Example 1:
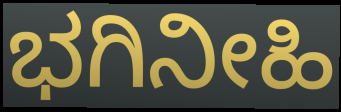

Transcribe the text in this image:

ಭಗಿನೀಹಿ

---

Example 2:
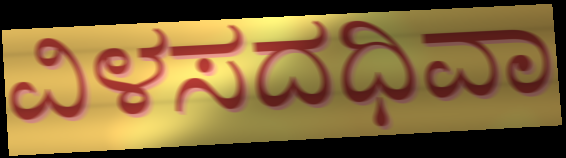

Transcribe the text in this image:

ವಿಳಸದಧಿವಾ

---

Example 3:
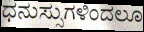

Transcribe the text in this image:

ಧನುಸ್ಸುಗಳಿಂದಲೂ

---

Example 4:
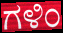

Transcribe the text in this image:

ಗಳಿಂ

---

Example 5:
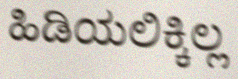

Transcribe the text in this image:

ಹಿಡಿಯಲಿಕ್ಕಿಲ್ಲ